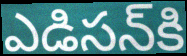
ఎడిసన్‌కి